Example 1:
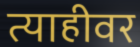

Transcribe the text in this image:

त्याहीवर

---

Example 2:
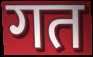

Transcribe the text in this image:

गत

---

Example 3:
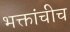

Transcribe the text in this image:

भक्तांचीच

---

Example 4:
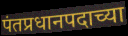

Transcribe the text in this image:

पंतप्रधानपदाच्या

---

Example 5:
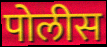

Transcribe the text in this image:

पोलीस